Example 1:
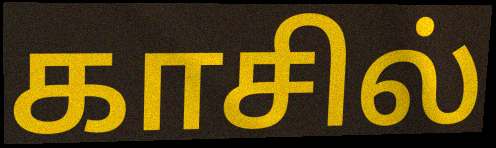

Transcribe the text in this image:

காசில்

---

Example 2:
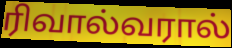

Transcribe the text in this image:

ரிவால்வரால்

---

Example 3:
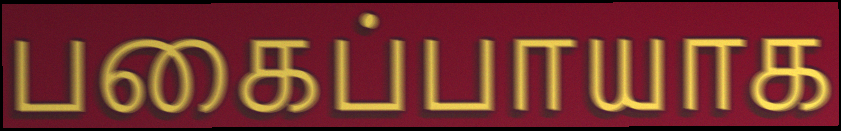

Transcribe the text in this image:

பகைப்பாயாக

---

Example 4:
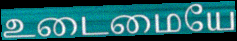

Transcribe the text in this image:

உடைமையே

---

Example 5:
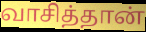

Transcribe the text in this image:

வாசித்தான்